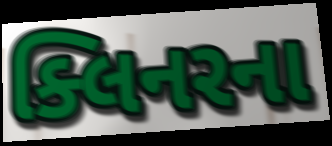
ક્લિનરના